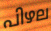
പിഴല